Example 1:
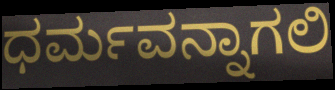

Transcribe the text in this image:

ಧರ್ಮವನ್ನಾಗಲಿ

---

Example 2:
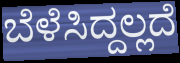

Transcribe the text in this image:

ಬೆಳೆಸಿದ್ದಲ್ಲದೆ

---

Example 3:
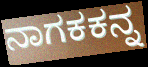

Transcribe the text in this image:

ನಾಗಕಕನ್ನ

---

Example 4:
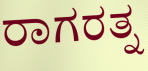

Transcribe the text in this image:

ರಾಗರತ್ನ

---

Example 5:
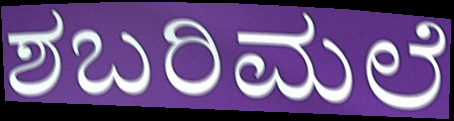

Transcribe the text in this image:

ಶಬರಿಮಲೆ